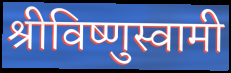
श्रीविष्णुस्वामी